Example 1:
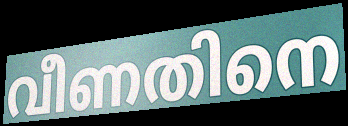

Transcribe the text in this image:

വീണതിനെ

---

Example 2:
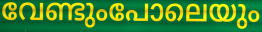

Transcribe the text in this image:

വേണ്ടുംപോലെയും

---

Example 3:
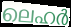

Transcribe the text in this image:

ലെഹർ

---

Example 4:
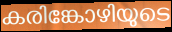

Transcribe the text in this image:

കരിങ്കോഴിയുടെ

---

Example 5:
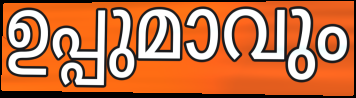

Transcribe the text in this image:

ഉപ്പുമാവും